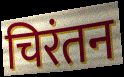
चिरंतन